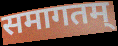
समागतम्